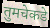
तुमचेकडे